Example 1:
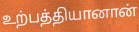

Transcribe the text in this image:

உற்பத்தியானான்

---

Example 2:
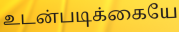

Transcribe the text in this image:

உடன்படிக்கையே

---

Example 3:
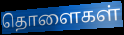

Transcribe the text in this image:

தொளைகள்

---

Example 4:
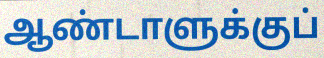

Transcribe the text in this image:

ஆண்டாளுக்குப்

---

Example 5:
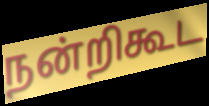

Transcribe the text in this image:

நன்றிகூட